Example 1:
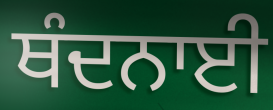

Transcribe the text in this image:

ਥੰਦਨਾਈ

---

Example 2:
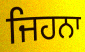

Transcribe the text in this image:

ਜਿਹਨਾ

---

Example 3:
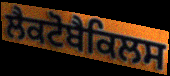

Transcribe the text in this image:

ਲੈਕਟੋਬੈਕਿਲਸ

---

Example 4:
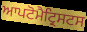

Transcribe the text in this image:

ਆਪਟੋਮੈਟ੍ਰਿਸਟਸ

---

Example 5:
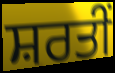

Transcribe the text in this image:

ਸ਼ਰਤੀਂ